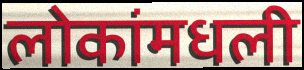
लोकांमधली